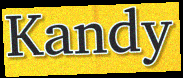
Kandy